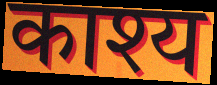
काश्य